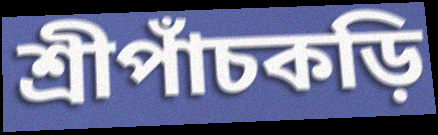
শ্রীপাঁচকড়ি